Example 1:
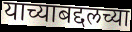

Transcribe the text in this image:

याच्याबद्दलच्या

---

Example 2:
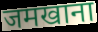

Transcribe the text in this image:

जमखाना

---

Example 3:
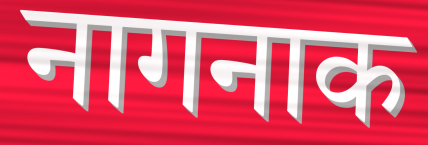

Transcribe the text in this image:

नागनाक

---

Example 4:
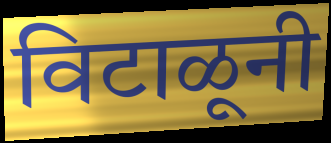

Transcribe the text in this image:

विटाळूनी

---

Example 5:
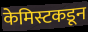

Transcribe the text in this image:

केमिस्टकडून